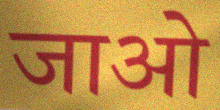
जाओ